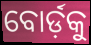
ବୋର୍ଡ଼କୁ